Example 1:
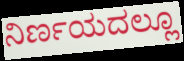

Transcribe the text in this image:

ನಿರ್ಣಯದಲ್ಲೂ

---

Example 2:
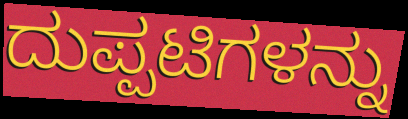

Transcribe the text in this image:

ದುಪ್ಪಟಿಗಳನ್ನು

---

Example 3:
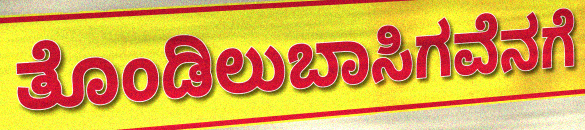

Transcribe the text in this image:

ತೊಂಡಿಲುಬಾಸಿಗವೆನಗೆ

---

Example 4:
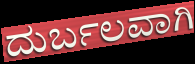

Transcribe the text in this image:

ದುರ್ಬಲವಾಗಿ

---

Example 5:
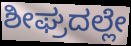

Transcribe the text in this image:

ಶೀಘ್ರದಲ್ಲೇ